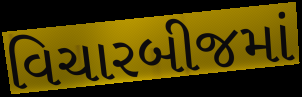
વિચારબીજમાં